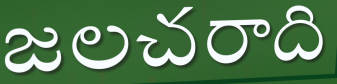
జలచరాది